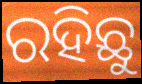
ରହିଛୁ